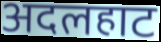
अदलहाट